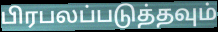
பிரபலப்படுத்தவும்